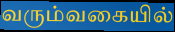
வரும்வகையில்